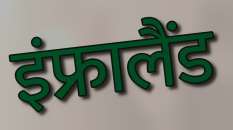
इंफ्रालैंड